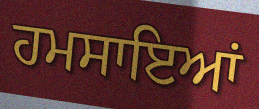
ਹਮਸਾਇਆਂ